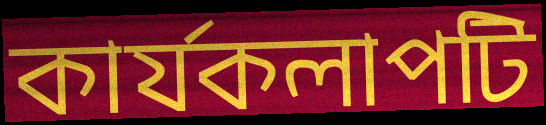
কার্যকলাপটি